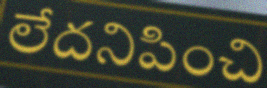
లేదనిపించి